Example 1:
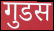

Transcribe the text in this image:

गुडस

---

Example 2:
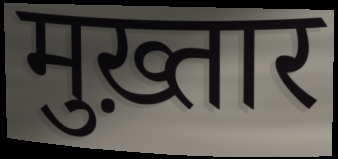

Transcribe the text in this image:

मुख़्तार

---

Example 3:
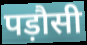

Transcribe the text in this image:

पड़ौसी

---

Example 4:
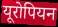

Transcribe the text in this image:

यूरोपियन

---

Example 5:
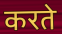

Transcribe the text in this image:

करते